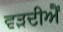
ਵੜਦੀਐਂ